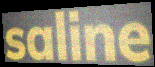
saline